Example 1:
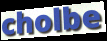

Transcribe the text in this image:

cholbe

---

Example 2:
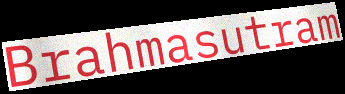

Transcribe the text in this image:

Brahmasutram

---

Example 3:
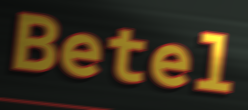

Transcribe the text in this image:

Betel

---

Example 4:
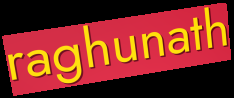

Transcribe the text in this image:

raghunath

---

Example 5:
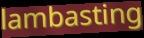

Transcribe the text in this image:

lambasting